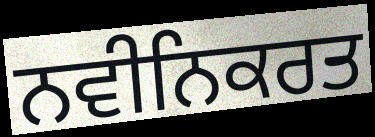
ਨਵੀਨਿਕਰਤ